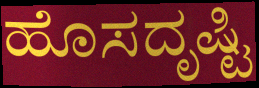
ಹೊಸದೃಷ್ಟಿ